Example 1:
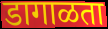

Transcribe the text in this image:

डागाळता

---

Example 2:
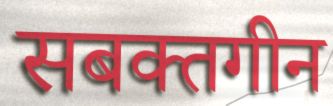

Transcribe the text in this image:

सबक्तगीन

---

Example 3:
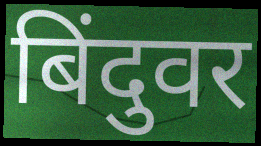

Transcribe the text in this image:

बिंदुवर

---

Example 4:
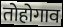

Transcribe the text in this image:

तोहोगाव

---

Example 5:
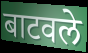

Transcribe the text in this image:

बाटवले